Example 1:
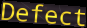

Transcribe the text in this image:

Defect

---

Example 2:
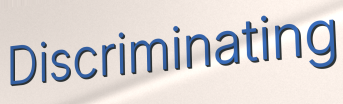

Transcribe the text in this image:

Discriminating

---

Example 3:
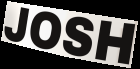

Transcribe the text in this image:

JOSH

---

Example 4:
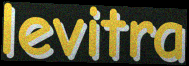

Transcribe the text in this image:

levitra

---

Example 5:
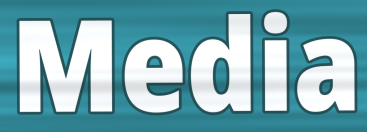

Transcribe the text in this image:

Media